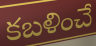
కబళించే